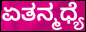
ಏತನ್ಮಧ್ಯೆ